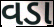
વડા